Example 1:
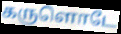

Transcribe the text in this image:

கருளொடே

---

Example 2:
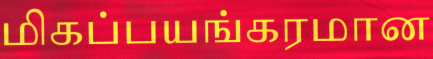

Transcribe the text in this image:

மிகப்பயங்கரமான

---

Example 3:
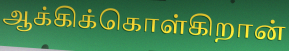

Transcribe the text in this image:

ஆக்கிக்கொள்கிறான்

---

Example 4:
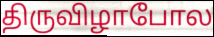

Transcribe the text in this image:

திருவிழாபோல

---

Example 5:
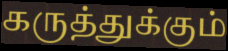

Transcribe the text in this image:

கருத்துக்கும்